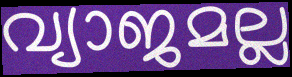
വ്യാജമല്ല